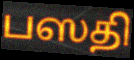
பஸதி